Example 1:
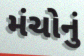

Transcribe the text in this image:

મંચોનું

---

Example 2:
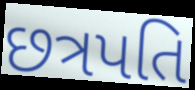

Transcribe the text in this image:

છત્રપતિ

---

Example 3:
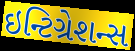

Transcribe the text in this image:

ઇન્ટિગ્રેશન્સ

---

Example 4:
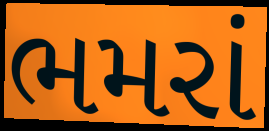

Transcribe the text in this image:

ભમરાં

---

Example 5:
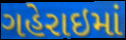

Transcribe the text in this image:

ગહેરાઇમાં